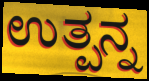
ಉತ್ಪನ್ನ